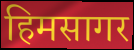
हिमसागर